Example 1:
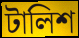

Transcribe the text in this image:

টালিশ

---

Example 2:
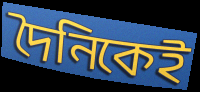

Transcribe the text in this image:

দৈনিকেই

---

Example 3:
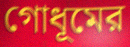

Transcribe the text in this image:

গোধূমের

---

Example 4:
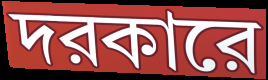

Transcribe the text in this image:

দরকারে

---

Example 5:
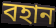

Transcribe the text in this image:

বহান